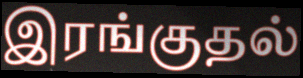
இரங்குதல்